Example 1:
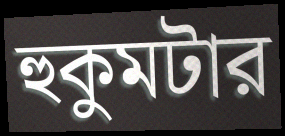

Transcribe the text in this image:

হুকুমটার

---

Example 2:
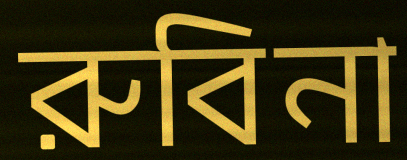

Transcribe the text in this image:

রুবিনা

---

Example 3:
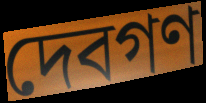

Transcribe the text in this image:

দেবগণ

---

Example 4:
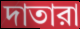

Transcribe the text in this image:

দাতারা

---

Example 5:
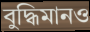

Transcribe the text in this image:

বুদ্ধিমানও